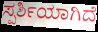
ಸ್ಪರ್ಶಿಯಾಗಿದೆ